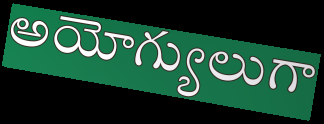
అయోగ్యులుగా